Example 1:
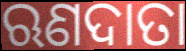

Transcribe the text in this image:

ଋଣଦାତା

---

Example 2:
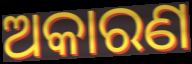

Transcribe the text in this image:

ଅକାରଣ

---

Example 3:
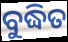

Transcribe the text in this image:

ବୁଦ୍ଧିତ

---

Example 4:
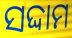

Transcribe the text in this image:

ସଦ୍ଦାମ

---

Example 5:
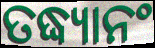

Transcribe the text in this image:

ତଦ୍ଧ୍ଯାନଂ